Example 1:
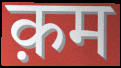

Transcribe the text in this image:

क़म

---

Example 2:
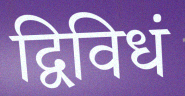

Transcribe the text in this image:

द्विविधं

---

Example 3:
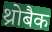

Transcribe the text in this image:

थ्रोबैक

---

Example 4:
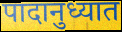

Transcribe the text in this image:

पादानुध्यात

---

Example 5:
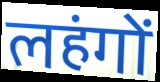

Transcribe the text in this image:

लहंगों